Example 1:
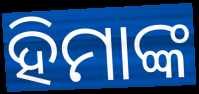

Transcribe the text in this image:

ହିମାଙ୍କ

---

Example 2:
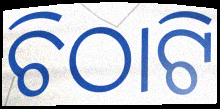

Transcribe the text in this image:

ଚିଠାଟି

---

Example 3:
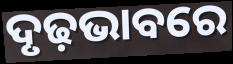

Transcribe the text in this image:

ଦୃଢ଼ଭାବରେ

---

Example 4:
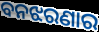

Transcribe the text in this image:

ବନଝରଣାର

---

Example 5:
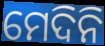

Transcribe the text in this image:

ମେଦିନି